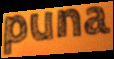
puna